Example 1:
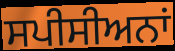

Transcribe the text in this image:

ਸਪੀਸੀਅਨਾਂ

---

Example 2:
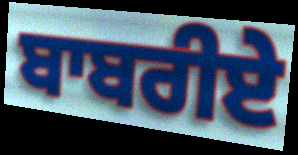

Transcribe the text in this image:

ਬਾਬਰੀਏ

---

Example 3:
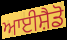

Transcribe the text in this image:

ਆਈਸ਼ੈਡੋ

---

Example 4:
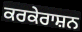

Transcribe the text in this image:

ਕਰਕੇਰਾਸ਼ਨ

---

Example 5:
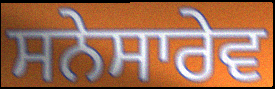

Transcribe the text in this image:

ਸਨੇਸਾਰੇਵ